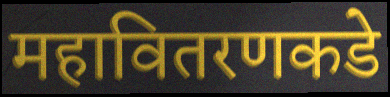
महावितरणकडे